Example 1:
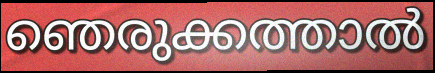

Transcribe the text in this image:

ഞെരുക്കത്താൽ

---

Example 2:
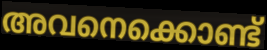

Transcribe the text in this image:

അവനെക്കൊണ്ട്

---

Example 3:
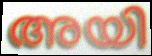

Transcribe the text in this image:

അയി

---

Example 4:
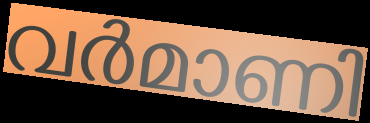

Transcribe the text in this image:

വർമാണി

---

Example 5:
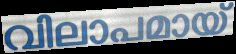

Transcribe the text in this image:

വിലാപമായ്